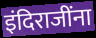
इंदिराजींना